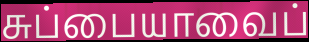
சுப்பையாவைப்